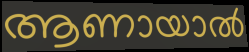
ആണായാൽ